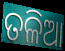
ତଳିଆ